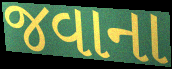
જવાના